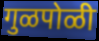
गुळपोळी